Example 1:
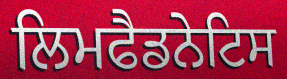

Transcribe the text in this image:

ਲਿਮਫੈਡਨੇਟਿਸ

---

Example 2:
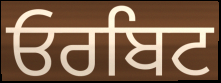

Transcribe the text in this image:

ਓਰਬਿਟ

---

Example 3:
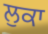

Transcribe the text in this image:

ਲੁਕਾ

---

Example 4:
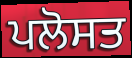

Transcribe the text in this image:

ਪਲੋਸਤ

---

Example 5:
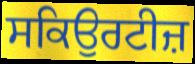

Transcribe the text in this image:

ਸਕਿਉਰਟੀਜ਼